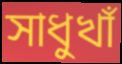
সাধুখাঁ